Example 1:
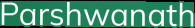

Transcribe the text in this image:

Parshwanath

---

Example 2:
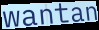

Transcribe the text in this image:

wantan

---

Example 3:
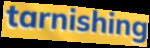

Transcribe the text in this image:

tarnishing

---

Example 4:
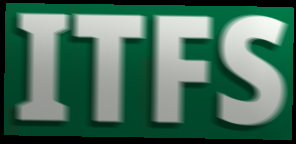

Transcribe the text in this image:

ITFS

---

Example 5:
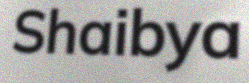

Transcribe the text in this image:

Shaibya